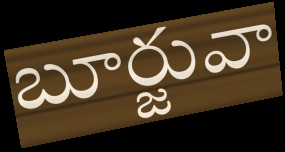
బూర్జువా